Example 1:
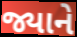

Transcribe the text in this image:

જ્યાને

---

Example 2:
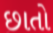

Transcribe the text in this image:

છાતો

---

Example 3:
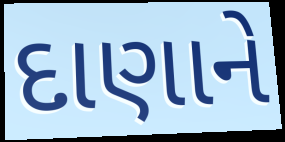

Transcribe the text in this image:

દાણાને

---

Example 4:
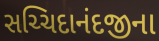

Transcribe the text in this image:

સચ્ચિદાનંદજીના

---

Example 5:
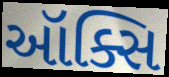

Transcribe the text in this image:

ઑક્સિ